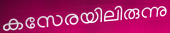
കസേരയിലിരുന്നു